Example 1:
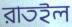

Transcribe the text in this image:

রাতইল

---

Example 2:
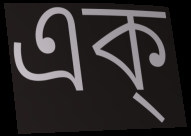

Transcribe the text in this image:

এক্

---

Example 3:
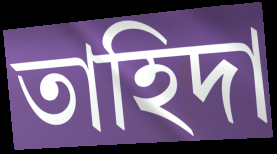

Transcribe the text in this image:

তাহিদা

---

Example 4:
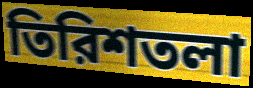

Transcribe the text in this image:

তিরিশতলা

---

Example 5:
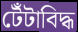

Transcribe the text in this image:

টেঁটাবিদ্ধ